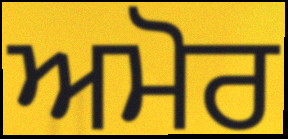
ਅਮੋਰ